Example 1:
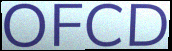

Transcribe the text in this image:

OFCD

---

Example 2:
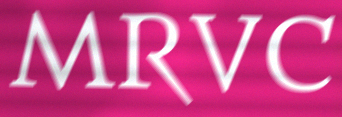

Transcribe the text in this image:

MRVC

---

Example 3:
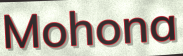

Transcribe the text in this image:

Mohona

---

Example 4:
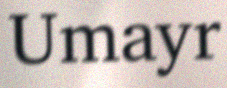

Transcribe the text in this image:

Umayr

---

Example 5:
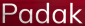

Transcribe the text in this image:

Padak